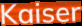
Kaiser